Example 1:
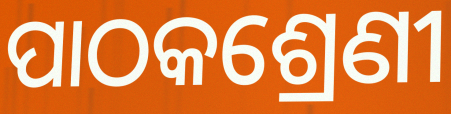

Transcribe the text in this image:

ପାଠକଶ୍ରେଣୀ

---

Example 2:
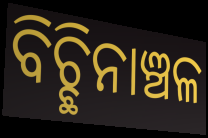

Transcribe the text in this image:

ବିଚ୍ଛିନାଞ୍ଚଳ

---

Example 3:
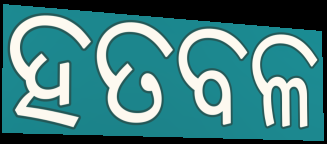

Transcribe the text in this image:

ହତବଳ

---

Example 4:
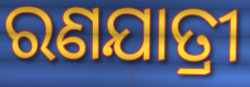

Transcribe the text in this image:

ରଣଯାତ୍ରୀ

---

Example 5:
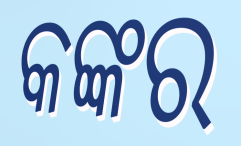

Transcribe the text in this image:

କଙ୍କର